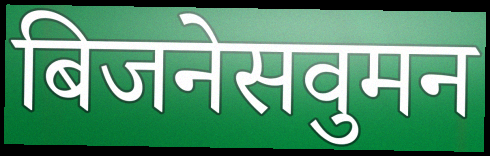
बिजनेसवुमन